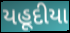
યહૂદીયા